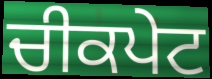
ਚੀਕਪੇਟ